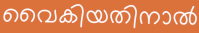
വൈകിയതിനാൽ